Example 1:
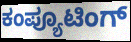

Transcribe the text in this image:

ಕಂಪ್ಯೂಟಿಂಗ್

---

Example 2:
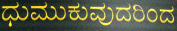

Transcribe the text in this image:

ಧುಮುಕುವುದರಿಂದ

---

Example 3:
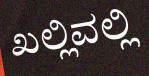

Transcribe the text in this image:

ಖಲ್ಲಿವಲ್ಲಿ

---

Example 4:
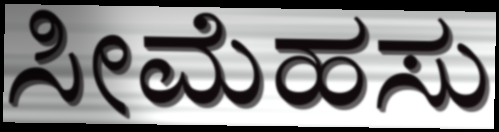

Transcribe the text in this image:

ಸೀಮೆಹಸು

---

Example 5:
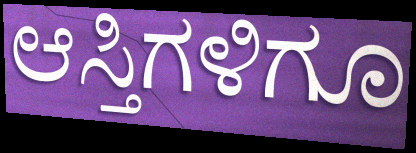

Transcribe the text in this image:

ಆಸ್ತಿಗಳಿಗೂ